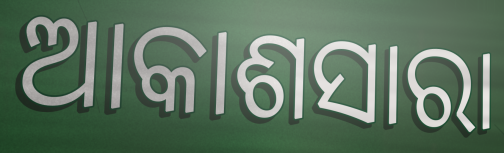
ଆକାଶସାରା